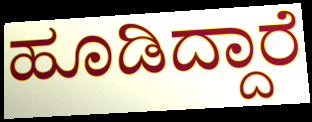
ಹೂಡಿದ್ದಾರೆ